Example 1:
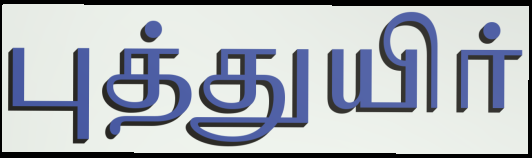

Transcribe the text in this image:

புத்துயிர்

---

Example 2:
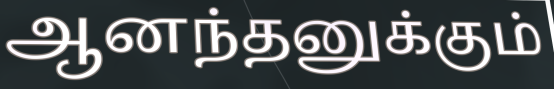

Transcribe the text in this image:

ஆனந்தனுக்கும்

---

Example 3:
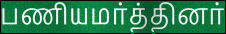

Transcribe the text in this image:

பணியமர்த்தினர்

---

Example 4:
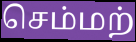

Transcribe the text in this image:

செம்மற்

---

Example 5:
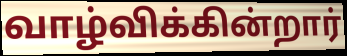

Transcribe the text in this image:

வாழ்விக்கின்றார்